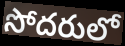
సోదరులో